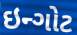
ઇન્ગોટ